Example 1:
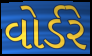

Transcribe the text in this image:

વોર્ડરે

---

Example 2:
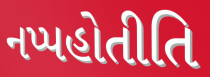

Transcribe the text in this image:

નપ્પહોતીતિ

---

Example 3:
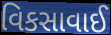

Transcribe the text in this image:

વિકસાવાઈ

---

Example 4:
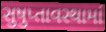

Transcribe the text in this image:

સુષુપ્તાવસ્થામાં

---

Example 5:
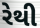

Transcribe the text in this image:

રેથી